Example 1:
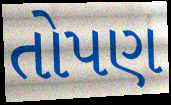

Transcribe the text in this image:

તોપણ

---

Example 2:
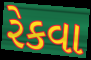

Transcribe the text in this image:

રેકવા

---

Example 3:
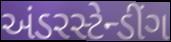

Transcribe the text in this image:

અંડરસ્ટેન્ડીંગ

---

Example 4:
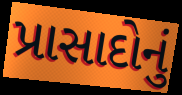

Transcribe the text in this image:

પ્રાસાદોનું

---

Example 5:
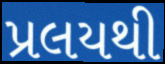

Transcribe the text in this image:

પ્રલયથી